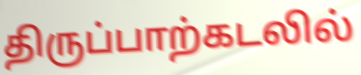
திருப்பாற்கடலில்